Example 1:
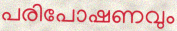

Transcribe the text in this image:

പരിപോഷണവും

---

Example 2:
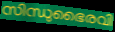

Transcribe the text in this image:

സിന്ധുഭൈരവി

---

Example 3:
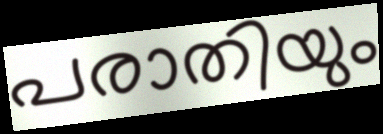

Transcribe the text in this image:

പരാതിയും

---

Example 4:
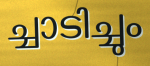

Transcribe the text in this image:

ച്ചാടിച്ചും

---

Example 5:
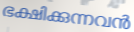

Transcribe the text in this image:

ഭക്ഷിക്കുന്നവൻ